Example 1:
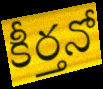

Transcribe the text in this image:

కీర్తనో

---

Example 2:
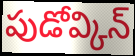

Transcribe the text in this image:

పుడోవ్కిన్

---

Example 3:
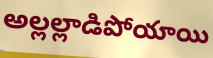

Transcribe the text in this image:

అల్లల్లాడిపోయాయి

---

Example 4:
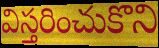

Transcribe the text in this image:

విస్తరించుకొని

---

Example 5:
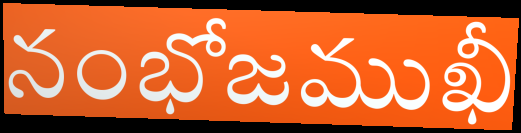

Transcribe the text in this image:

నంభోజముఖీ